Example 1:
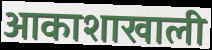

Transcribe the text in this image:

आकाशाखाली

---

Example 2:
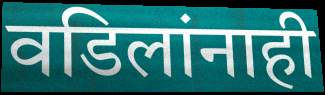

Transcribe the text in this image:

वडिलांनाही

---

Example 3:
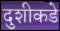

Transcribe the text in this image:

दुशीकडे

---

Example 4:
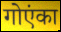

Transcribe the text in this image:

गोएंका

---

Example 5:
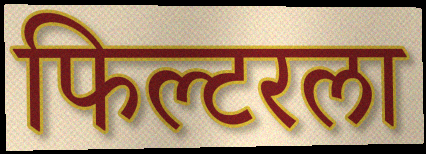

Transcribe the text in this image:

फिल्टरला